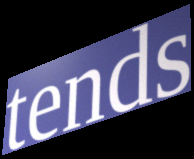
tends